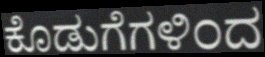
ಕೊಡುಗೆಗಳಿಂದ